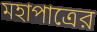
মহাপাত্রের